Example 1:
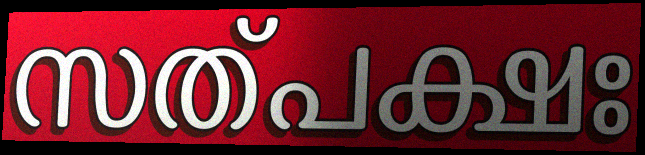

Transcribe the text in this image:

സത്പക്ഷഃ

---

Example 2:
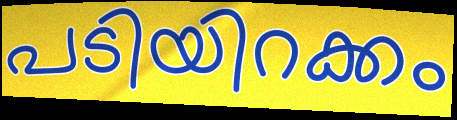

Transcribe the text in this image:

പടിയിറക്കം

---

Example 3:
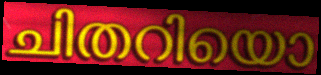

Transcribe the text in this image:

ചിതറിയൊ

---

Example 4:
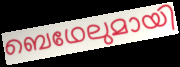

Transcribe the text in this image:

ബെഥേലുമായി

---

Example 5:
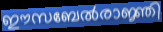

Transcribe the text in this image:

ഈസബേൽരാജ്ഞി